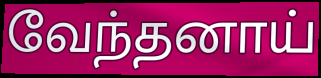
வேந்தனாய்